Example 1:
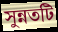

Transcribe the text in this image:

সুন্নতটি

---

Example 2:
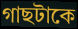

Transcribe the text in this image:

গাছটাকে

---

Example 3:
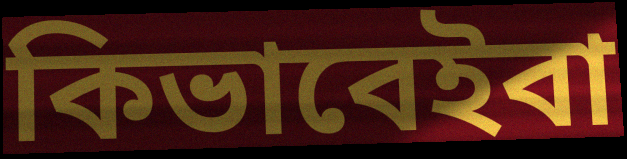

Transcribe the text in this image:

কিভাবেইবা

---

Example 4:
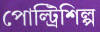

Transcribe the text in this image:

পোল্ট্রিশিল্প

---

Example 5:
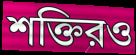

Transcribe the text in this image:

শক্তিরও